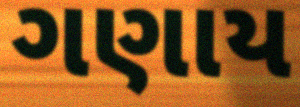
ગણાય